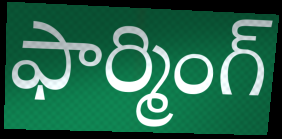
ఫార్మింగ్